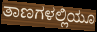
ತಾಣಗಳಲ್ಲಿಯೂ